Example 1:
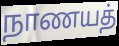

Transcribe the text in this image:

நாணயத்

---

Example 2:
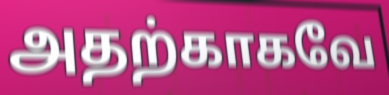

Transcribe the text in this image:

அதற்காகவே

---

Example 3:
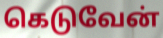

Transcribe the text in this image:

கெடுவேன்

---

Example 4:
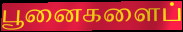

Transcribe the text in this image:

பூனைகளைப்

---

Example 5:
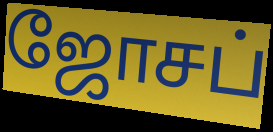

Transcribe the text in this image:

ஜோசப்